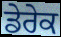
ਡੇਰੇਕ